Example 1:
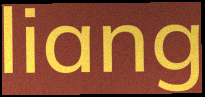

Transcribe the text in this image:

liang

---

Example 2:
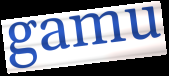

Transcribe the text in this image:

gamu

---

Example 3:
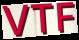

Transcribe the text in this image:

VTF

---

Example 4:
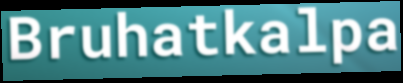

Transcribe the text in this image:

Bruhatkalpa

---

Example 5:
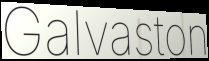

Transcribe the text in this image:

Galvaston